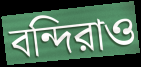
বন্দিরাও